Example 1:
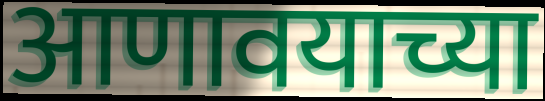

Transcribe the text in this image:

आणावयाच्या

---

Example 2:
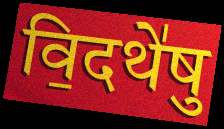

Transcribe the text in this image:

वि॒दथे॑षु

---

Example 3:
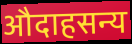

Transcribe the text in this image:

औदाहसन्य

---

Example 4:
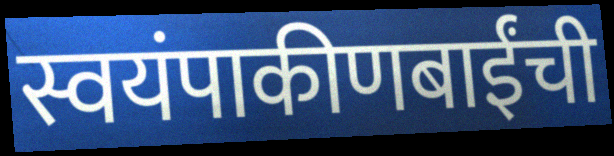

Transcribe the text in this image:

स्वयंपाकीणबाईंची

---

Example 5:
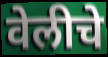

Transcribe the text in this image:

वेलीचे